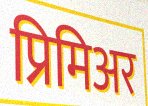
प्रिमिअर